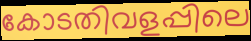
കോടതിവളപ്പിലെ